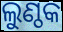
ଲୁଣ୍ଠକ